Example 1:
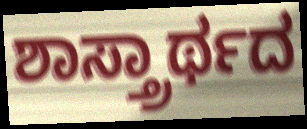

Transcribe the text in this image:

ಶಾಸ್ತ್ರಾರ್ಥದ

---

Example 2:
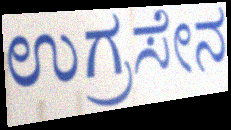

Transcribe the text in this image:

ಉಗ್ರಸೇನ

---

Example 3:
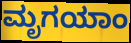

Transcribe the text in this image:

ಮೃಗಯಾಂ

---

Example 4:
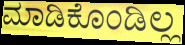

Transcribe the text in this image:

ಮಾಡಿಕೊಂಡಿಲ್ಲ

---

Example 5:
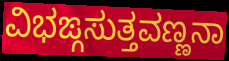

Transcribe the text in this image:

ವಿಭಙ್ಗಸುತ್ತವಣ್ಣನಾ